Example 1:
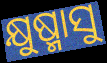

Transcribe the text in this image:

କ୍ଷୁଷ୍ମାସୁ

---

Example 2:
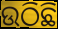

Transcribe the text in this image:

ଉଠିଛି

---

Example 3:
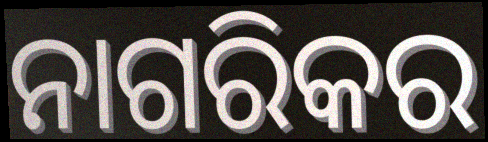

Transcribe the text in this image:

ନାଗରିକର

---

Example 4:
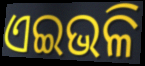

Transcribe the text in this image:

ଏଇଭଳି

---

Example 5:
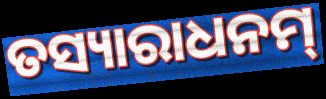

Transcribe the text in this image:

ତସ୍ୟାରାଧନମ୍